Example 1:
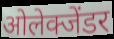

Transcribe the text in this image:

ओलेक्जेंडर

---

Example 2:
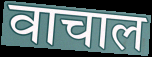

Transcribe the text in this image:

वाचाल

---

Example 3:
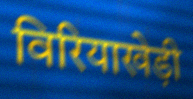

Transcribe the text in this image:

विरियाखेड़ी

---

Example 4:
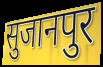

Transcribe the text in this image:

सुजानपुर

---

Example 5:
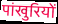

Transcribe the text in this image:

पांखुरियों